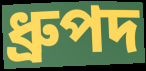
ধ্রুপদ